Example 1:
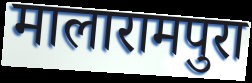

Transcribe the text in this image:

मालारामपुरा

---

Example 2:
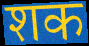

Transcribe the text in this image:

शक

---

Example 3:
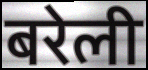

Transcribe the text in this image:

बरेली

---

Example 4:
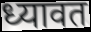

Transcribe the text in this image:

ध्यावत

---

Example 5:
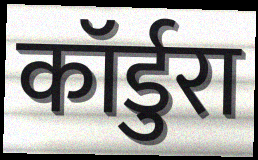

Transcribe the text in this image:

कॉर्डुरा